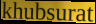
khubsurat